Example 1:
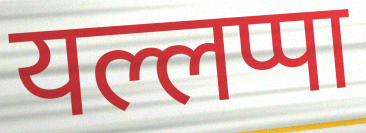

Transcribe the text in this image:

यल्लप्पा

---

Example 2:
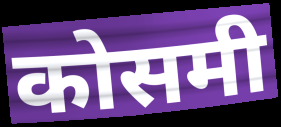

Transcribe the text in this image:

कोसमी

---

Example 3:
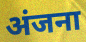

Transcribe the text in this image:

अंजना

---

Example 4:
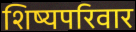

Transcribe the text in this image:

शिष्यपरिवार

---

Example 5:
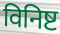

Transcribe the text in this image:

विनिष्ट